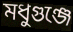
মধুগুঞ্জে